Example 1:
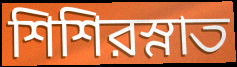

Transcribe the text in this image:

শিশিরস্নাত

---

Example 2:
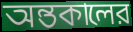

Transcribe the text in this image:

অন্তকালের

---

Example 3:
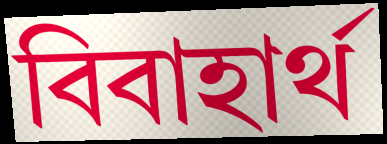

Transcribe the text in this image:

বিবাহার্থ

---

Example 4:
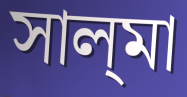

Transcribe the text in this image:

সাল্‌মা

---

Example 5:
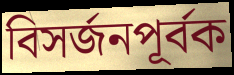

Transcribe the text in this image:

বিসর্জনপূর্বক